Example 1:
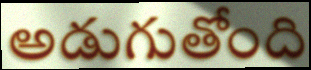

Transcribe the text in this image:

అడుగుతోంది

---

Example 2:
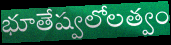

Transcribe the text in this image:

భూతేష్వలోలత్వం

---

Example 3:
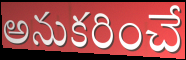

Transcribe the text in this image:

అనుకరించే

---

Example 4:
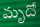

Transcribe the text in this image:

మృదో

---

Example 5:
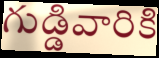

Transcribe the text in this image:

గుడ్డివారికి